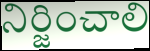
నిర్జించాలి